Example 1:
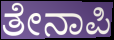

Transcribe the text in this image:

ತೇನಾಪಿ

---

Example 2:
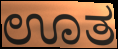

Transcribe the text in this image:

ಊತ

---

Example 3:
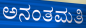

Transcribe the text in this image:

ಅನಂತಮತಿ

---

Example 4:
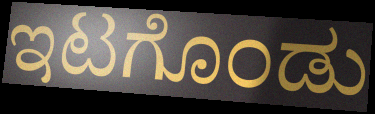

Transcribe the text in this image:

ಇಟಗೊಂಡು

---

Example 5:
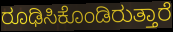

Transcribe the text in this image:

ರೂಢಿಸಿಕೊಂಡಿರುತ್ತಾರೆ